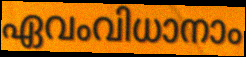
ഏവംവിധാനാം